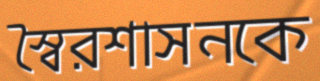
স্বৈরশাসনকে